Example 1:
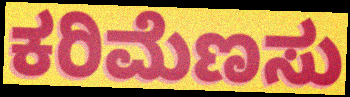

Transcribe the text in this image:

ಕರಿಮೆಣಸು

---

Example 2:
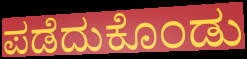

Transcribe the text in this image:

ಪಡೆದುಕೊಂಡು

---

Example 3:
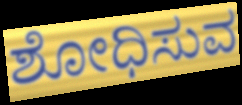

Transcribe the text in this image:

ಶೋಧಿಸುವ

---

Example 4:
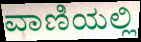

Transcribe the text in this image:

ವಾಣಿಯಲ್ಲಿ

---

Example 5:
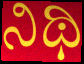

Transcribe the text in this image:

ನಿಥಿ